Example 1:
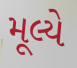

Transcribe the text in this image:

મૂલ્યે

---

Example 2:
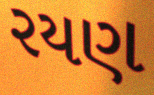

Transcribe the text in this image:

રયણ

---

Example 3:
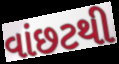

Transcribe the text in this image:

વાંછટથી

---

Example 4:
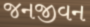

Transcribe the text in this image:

જનજીવન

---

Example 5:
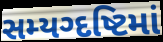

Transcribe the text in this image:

સમ્યગ્દષ્ટિમાં